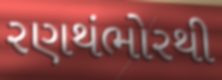
રણથંભોરથી